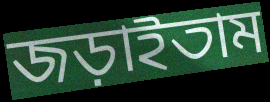
জড়াইতাম